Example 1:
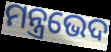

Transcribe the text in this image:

ମନ୍ତ୍ରଭେଦ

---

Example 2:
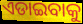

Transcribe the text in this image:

ଏଡାଇବାକୁ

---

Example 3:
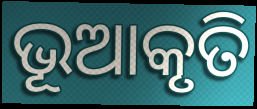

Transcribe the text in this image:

ଭୂଆକୃତି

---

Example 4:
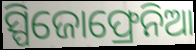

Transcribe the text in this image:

ସ୍ପିଜୋଫ୍ରେନିଆ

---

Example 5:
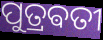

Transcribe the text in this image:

ପୁତ୍ରଵତୀ